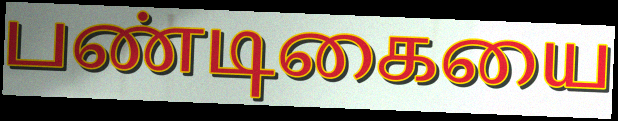
பண்டிகையை